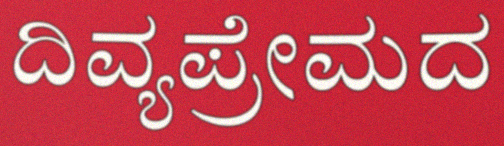
ದಿವ್ಯಪ್ರೇಮದ